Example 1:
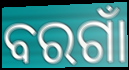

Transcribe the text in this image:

ବରଗାଁ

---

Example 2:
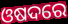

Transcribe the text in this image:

ଓଷଦରେ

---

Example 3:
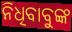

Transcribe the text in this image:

ନିଧିବାବୁଙ୍କ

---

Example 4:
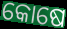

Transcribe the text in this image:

କୋଷେ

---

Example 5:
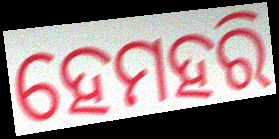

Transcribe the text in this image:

ହେମହରି